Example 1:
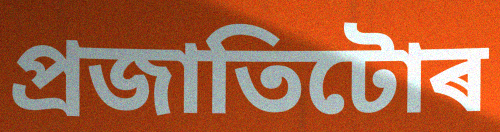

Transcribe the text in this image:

প্ৰজাতিটোৰ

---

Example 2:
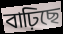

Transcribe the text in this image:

বাঢ়িছে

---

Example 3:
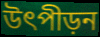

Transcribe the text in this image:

উৎপীড়ন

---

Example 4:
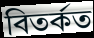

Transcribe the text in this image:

বিতৰ্কত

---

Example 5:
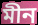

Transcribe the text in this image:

মীন